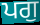
ਪਗੁ